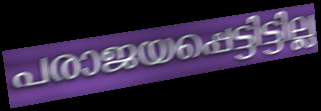
പരാജയപ്പെട്ടിട്ടില്ല